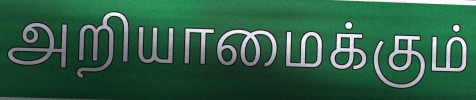
அறியாமைக்கும்